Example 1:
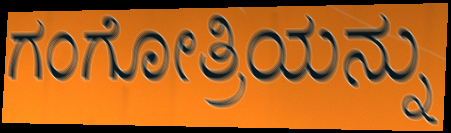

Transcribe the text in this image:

ಗಂಗೋತ್ರಿಯನ್ನು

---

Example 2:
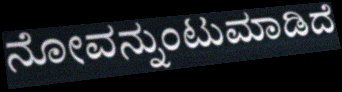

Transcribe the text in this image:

ನೋವನ್ನುಂಟುಮಾಡಿದೆ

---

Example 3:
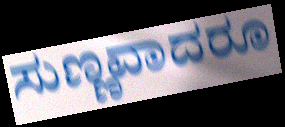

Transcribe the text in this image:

ಸುಣ್ಣವಾದರೂ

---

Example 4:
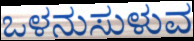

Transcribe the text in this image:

ಒಳನುಸುಳುವ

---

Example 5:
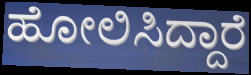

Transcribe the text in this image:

ಹೋಲಿಸಿದ್ದಾರೆ